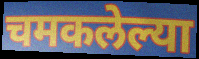
चमकलेल्या